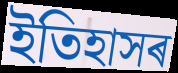
ইতিহাসৰ